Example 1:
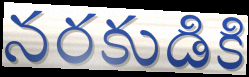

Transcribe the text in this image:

నరకుడికి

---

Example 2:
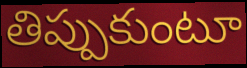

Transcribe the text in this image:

తిప్పుకుంటూ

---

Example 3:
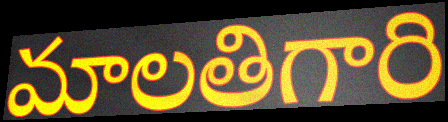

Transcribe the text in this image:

మాలతిగారి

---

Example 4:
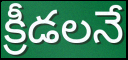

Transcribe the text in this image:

క్రీడలనే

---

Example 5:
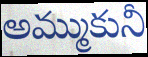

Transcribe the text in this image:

అమ్ముకునీ